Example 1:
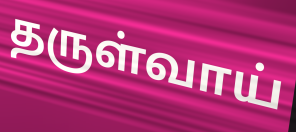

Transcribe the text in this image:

தருள்வாய்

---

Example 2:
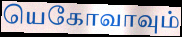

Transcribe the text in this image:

யெகோவாவும்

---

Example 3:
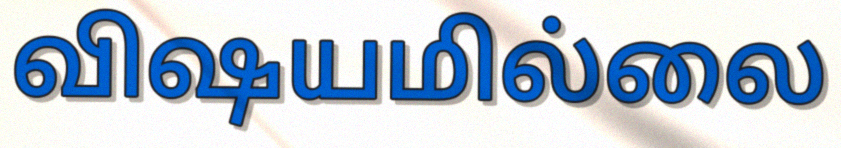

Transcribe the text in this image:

விஷயமில்லை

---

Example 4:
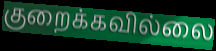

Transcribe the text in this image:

குறைக்கவில்லை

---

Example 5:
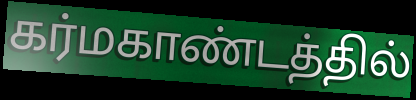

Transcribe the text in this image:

கர்மகாண்டத்தில்